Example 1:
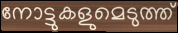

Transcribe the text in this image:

നോട്ടുകളുമെടുത്ത്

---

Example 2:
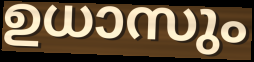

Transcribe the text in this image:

ഉധാസും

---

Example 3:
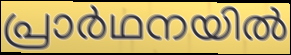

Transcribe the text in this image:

പ്രാർഥനയിൽ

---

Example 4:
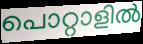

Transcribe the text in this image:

പൊറ്റാളിൽ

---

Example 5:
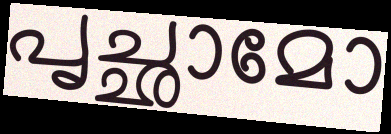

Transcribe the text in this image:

പൃച്ഛാമോ